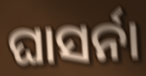
ଘାସର୍ନା